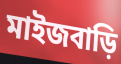
মাইজবাড়ি